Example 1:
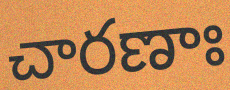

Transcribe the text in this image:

చారణాః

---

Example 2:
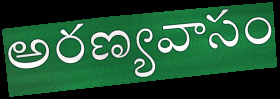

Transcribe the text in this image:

అరణ్యవాసం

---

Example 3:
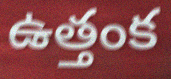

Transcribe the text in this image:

ఉత్తంక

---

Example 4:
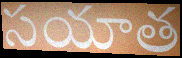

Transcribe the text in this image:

సయాత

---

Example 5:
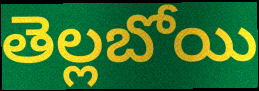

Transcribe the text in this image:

తెల్లబోయి